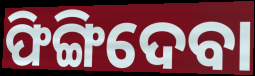
ଫିଙ୍ଗିଦେବା